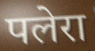
पलेरा